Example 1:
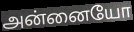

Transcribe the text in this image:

அன்னையோ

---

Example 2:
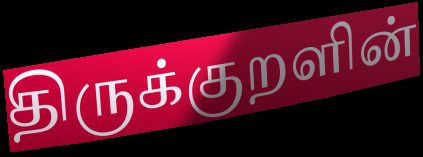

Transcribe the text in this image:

திருக்குறளின்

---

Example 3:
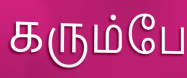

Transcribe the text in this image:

கரும்பே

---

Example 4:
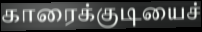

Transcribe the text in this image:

காரைக்குடியைச்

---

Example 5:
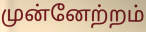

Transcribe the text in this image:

முன்னேற்றம்